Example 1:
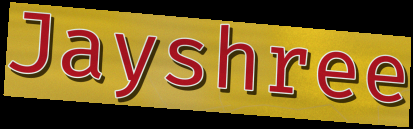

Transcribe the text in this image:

Jayshree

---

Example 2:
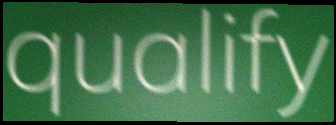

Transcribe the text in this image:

qualify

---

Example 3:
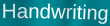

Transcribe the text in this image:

Handwriting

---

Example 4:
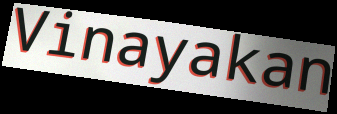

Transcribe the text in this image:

Vinayakan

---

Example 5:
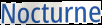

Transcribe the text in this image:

Nocturne